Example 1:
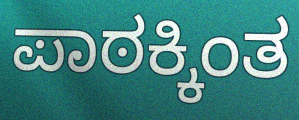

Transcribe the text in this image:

ಪಾಠಕ್ಕಿಂತ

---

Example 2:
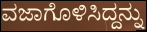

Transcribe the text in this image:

ವಜಾಗೊಳಿಸಿದ್ದನ್ನು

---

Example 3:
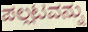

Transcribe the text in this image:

ಪಲ್ಲಟವನ್ನು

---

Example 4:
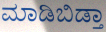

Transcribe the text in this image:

ಮಾಡಿಬಿಡ್ತಾ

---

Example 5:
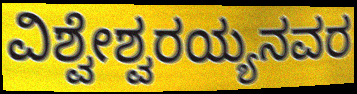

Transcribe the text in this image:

ವಿಶ್ವೇಶ್ವರಯ್ಯನವರ